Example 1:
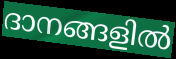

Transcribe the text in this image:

ദാനങ്ങളിൽ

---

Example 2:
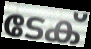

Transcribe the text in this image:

ടേക്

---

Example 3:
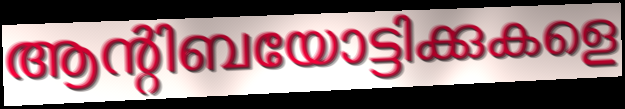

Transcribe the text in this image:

ആന്റിബയോട്ടിക്കുകളെ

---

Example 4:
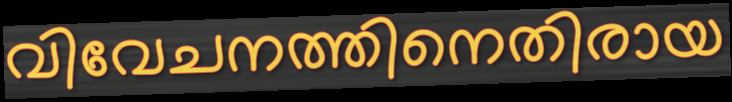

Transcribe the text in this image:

വിവേചനത്തിനെതിരായ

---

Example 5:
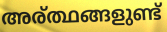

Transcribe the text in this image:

അര്ത്ഥങ്ങളുണ്ട്